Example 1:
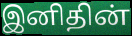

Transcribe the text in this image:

இனிதின்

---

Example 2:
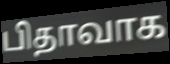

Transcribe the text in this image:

பிதாவாக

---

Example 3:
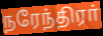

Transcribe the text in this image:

நரேந்திரர்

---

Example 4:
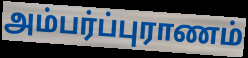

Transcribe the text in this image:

அம்பர்ப்புராணம்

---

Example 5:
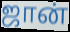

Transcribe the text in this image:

ஜான்